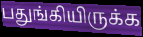
பதுங்கியிருக்க